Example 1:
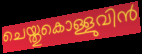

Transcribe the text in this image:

ചെയ്തുകൊള്ളുവിൻ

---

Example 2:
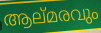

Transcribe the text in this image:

ആല്മരവും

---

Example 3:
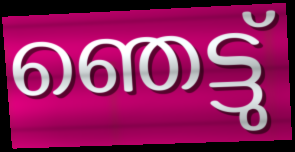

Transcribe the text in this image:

ഞെട്ടു്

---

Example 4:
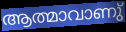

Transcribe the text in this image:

ആത്മാവാണു്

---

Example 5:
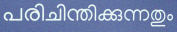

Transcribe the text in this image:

പരിചിന്തിക്കുന്നതും